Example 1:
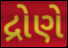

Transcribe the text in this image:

દ્રોણે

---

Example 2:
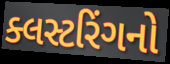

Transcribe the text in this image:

ક્લસ્ટરિંગનો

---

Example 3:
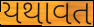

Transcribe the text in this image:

યથાવત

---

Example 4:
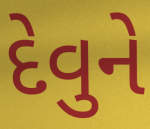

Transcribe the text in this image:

દેવુને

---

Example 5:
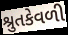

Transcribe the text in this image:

શ્રુતકેવળી